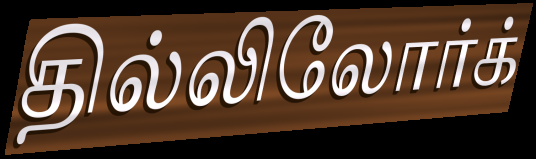
தில்லிலோர்க்